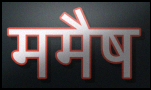
ममैष